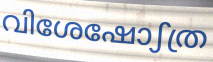
വിശേഷോഽത്ര